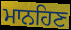
ਮਾਨਹਿਣ